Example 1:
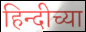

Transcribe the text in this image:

हिन्दीच्या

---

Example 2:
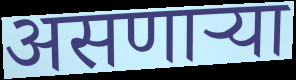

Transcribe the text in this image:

असणार्‍या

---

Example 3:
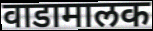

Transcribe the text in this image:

वाडामालक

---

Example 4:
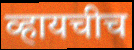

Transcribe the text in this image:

व्हायचीच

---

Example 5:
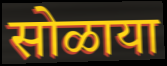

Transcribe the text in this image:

सोळाया